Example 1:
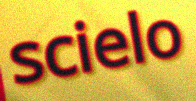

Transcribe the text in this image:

scielo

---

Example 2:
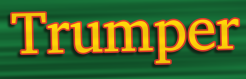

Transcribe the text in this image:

Trumper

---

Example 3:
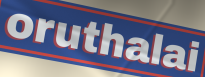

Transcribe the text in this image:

oruthalai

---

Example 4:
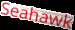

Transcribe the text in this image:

Seahawk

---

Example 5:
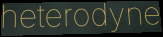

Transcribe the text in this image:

heterodyne